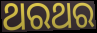
ଥରଥର